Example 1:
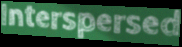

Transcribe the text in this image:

Interspersed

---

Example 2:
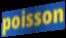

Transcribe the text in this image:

poisson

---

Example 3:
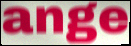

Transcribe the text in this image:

ange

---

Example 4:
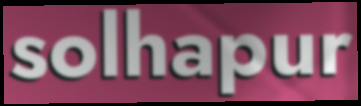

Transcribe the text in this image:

solhapur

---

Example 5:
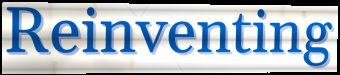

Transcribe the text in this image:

Reinventing